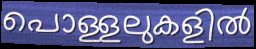
പൊള്ളലുകളിൽ